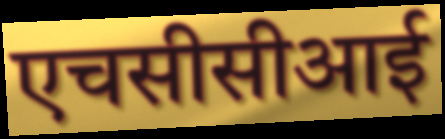
एचसीसीआई